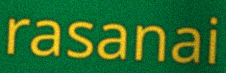
rasanai